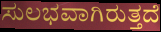
ಸುಲಭವಾಗಿರುತ್ತದೆ